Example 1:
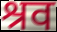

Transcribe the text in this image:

श्रव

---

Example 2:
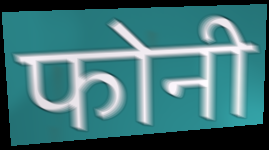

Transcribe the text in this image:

फोनी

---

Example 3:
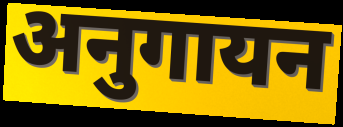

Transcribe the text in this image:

अनुगायन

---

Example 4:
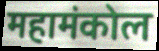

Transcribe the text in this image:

महामंकोल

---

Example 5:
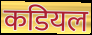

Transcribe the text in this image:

कडियल